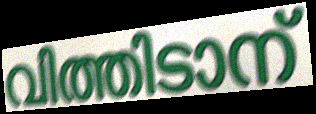
വിത്തിടാന്